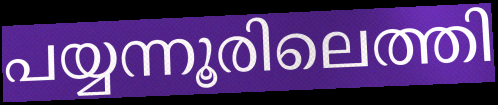
പയ്യന്നൂരിലെത്തി